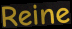
Reine